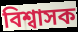
বিশ্বাসক